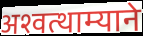
अश्वत्थाम्याने